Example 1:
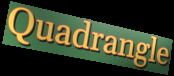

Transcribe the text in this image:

Quadrangle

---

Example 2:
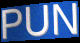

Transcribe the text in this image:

PUN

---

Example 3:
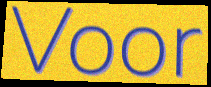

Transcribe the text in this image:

Voor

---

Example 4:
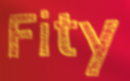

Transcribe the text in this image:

Fity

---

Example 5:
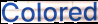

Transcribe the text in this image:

Colored